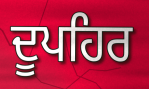
ਦੂਪਹਿਰ